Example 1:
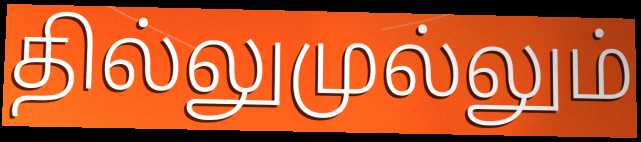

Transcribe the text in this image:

தில்லுமுல்லும்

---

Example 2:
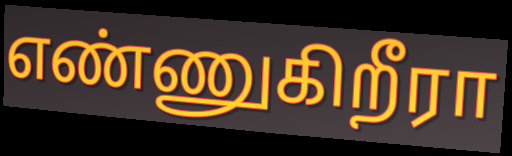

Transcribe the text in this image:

எண்ணுகிறீரா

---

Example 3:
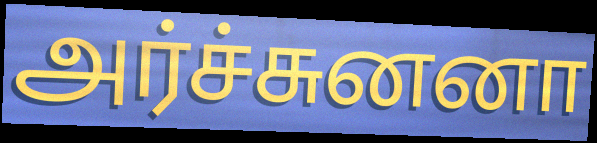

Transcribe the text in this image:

அர்ச்சுனனா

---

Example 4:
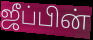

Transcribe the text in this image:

ஜீப்பின்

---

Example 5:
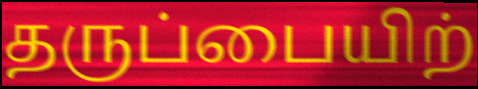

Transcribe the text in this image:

தருப்பையிற்